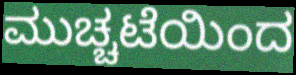
ಮುಚ್ಚಟೆಯಿಂದ